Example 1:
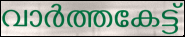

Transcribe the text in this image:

വാർത്തകേട്ട്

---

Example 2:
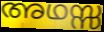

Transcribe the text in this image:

അഥസ്സ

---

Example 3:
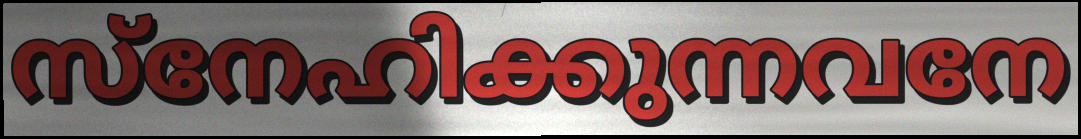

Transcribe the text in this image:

സ്നേഹിക്കുന്നവനേ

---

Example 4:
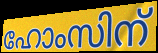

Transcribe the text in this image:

ഹോംസിന്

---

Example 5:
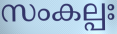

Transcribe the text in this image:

സംകല്പഃ